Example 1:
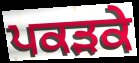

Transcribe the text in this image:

ਪਕੜਕੇ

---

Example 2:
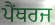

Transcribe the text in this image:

ਪੈਂਥਰਜ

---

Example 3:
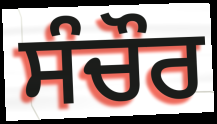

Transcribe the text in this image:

ਸੰਚੌਰ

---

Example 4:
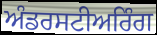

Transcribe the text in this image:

ਅੰਡਰਸਟੀਅਰਿੰਗ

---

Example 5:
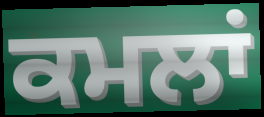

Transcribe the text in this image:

ਕਮਲਾਂ